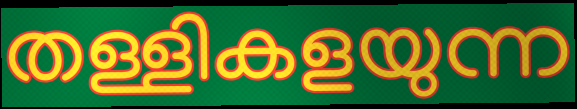
തള്ളികളയുന്ന